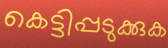
കെട്ടിപ്പടുക്കുക